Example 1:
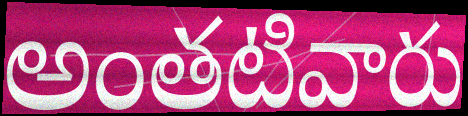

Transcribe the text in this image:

అంతటివారు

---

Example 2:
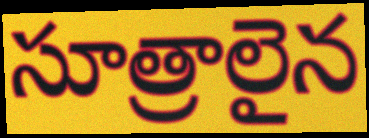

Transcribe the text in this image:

సూత్రాలైన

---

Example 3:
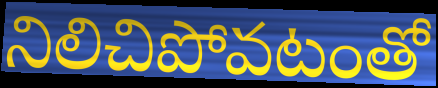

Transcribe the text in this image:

నిలిచిపోవటంతో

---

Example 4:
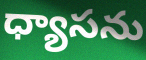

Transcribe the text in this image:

ధ్యాసను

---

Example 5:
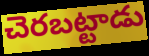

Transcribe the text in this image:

చెరబట్టాడు